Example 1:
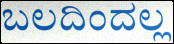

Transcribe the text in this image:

ಬಲದಿಂದಲ್ಲ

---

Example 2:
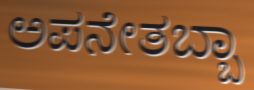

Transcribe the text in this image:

ಅಪನೇತಬ್ಬಾ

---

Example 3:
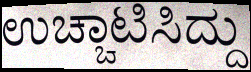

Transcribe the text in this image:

ಉಚ್ಚಾಟಿಸಿದ್ದು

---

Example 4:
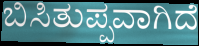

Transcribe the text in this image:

ಬಿಸಿತುಪ್ಪವಾಗಿದೆ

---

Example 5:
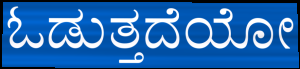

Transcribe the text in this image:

ಓಡುತ್ತದೆಯೋ